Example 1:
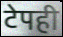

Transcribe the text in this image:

टेपही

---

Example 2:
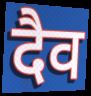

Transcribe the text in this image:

दैव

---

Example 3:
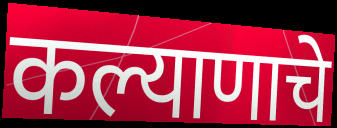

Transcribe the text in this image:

कल्याणाचे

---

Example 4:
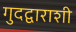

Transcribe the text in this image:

गुदद्वाराशी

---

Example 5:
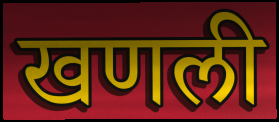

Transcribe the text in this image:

खणली